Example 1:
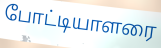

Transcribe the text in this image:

போட்டியாளரை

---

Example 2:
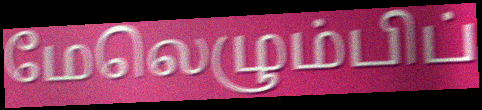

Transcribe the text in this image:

மேலெழும்பிப்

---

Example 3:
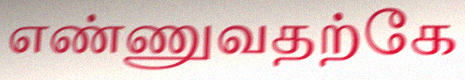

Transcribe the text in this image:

எண்ணுவதற்கே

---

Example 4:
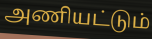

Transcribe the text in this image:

அணியட்டும்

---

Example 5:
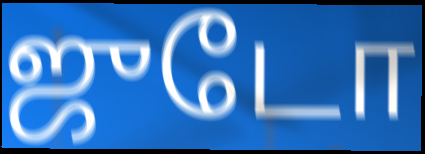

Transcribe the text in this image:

ஜுடோ